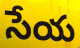
సేయ